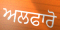
ਅਲਫਾਰੋ